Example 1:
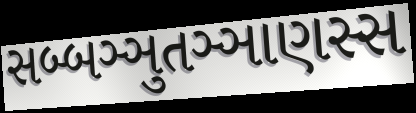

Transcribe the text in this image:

સબ્બઞ્ઞુતઞ્ઞાણસ્સ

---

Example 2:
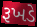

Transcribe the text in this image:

રૂખડે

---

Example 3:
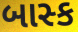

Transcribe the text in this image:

બાસ્ક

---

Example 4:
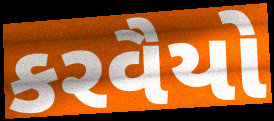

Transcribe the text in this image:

કરવૈયો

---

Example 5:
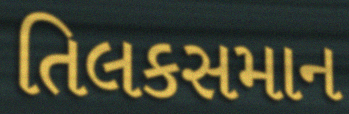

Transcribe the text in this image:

તિલકસમાન